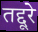
तद्दूरे